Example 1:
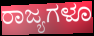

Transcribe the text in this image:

ರಾಜ್ಯಗಳೂ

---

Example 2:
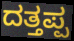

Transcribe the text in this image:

ದತ್ತಪ್ಪ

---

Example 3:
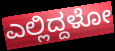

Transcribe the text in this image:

ಎಲ್ಲಿದ್ದಳೋ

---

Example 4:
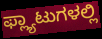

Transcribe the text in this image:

ಫ್ಲ್ಯಾಟುಗಳಲ್ಲಿ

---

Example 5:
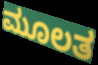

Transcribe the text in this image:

ಮೂಲತ